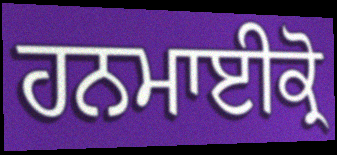
ਹਨਮਾਈਕ੍ਰੋ